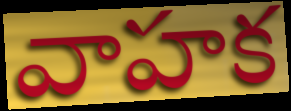
వాహక